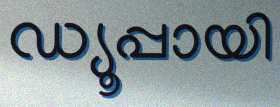
ഡ്യൂപ്പായി